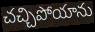
చచ్చిపోయాను